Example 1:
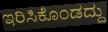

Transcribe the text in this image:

ಇರಿಸಿಕೊಂಡದ್ದು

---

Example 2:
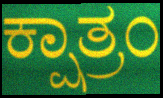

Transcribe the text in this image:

ಕ್ಷಾತ್ರಂ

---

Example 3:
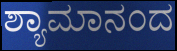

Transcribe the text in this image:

ಶ್ಯಾಮಾನಂದ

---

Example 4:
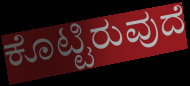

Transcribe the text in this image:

ಕೊಟ್ಟಿರುವುದೆ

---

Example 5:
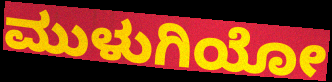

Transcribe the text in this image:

ಮುಳುಗಿಯೋ